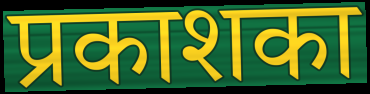
प्रकाशका